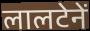
लालटेनें